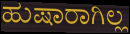
ಹುಷಾರಾಗಿಲ್ಲ